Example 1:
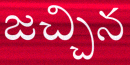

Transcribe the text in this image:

జచ్చిన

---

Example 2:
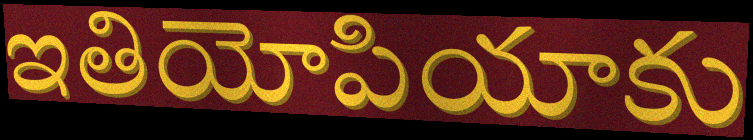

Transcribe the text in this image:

ఇతియోపియాకు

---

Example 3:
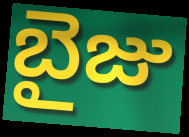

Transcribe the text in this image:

బైజు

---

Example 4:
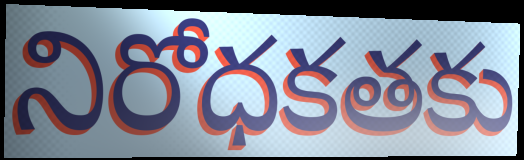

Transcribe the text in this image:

నిరోధకతకు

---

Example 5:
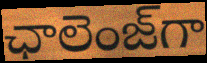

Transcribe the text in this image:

ఛాలెంజ్‌గా